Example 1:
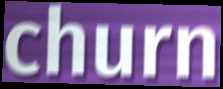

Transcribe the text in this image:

churn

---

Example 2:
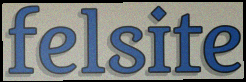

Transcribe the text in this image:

felsite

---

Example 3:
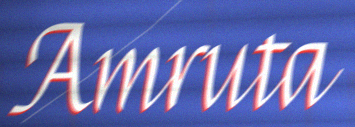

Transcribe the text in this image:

Amruta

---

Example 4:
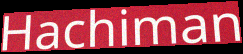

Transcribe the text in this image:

Hachiman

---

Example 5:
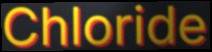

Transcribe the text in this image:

Chloride